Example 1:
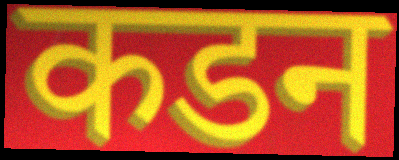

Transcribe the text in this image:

कडन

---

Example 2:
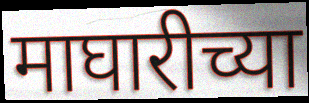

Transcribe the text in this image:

माघारीच्या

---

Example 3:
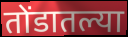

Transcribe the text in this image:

तोंडातल्या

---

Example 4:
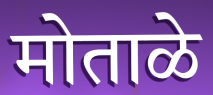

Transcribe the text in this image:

मोताळे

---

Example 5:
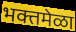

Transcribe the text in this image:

भक्तमेळा